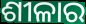
ଶୀଳାର